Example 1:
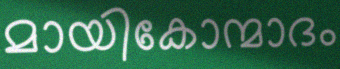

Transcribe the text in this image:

മായികോന്മാദം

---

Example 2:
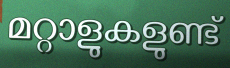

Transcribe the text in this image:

മറ്റാളുകളുണ്ട്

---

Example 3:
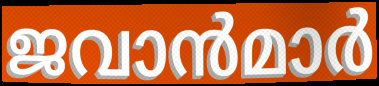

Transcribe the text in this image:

ജവാൻമാർ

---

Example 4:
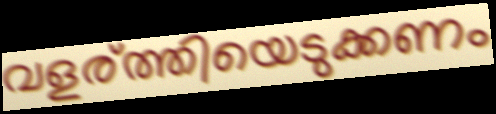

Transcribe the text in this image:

വളര്ത്തിയെടുക്കണം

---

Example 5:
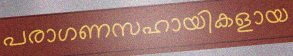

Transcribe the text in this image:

പരാഗണസഹായികളായ